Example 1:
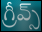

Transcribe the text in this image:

గ్రీవ్స్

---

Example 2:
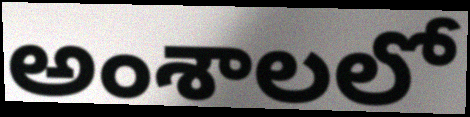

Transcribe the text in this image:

అంశాలలో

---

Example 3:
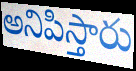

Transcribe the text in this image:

అనిపిస్తారు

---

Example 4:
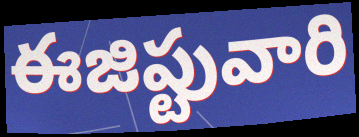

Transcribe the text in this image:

ఈజిప్టువారి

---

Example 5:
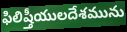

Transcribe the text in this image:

ఫిలిష్తీయులదేశమును